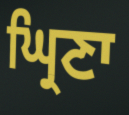
ਘ੍ਰਿਣਾ